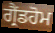
ਗ੍ਰੈਂਡਹੋਮ